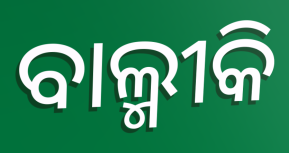
ବାଲ୍ମୀକି